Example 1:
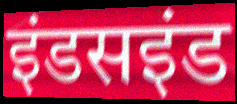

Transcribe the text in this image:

इंडसइंड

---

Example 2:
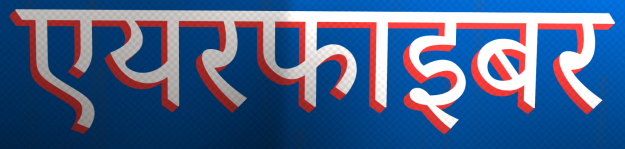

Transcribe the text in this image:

एयरफाइबर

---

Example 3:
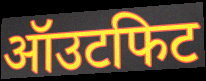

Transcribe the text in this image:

ऑउटफिट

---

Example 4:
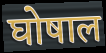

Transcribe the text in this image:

घोषाल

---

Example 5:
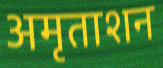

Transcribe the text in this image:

अमृताशन